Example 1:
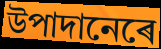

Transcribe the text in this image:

উপাদানেৰে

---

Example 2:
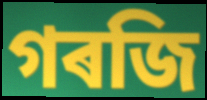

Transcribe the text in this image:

গৰজি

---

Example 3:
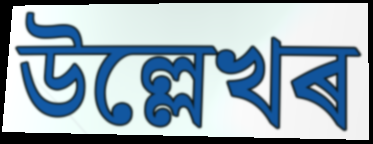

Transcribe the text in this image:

উল্লেখৰ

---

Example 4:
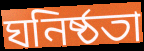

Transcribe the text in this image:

ঘনিষ্ঠতা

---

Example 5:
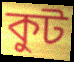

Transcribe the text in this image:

কুট